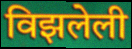
विझलेली